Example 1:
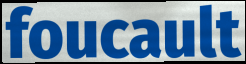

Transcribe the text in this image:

foucault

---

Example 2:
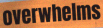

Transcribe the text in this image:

overwhelms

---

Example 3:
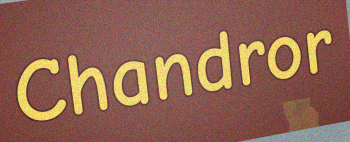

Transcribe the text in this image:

Chandror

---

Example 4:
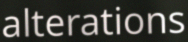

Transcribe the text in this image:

alterations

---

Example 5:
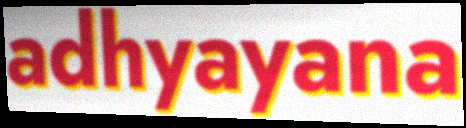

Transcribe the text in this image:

adhyayana